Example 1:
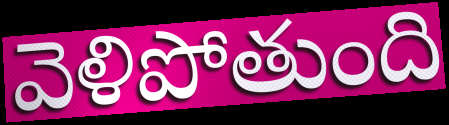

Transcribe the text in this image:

వెళిపోతుంది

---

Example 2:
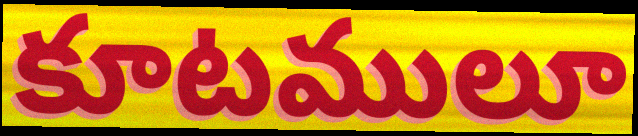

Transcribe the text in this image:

కూటములూ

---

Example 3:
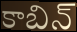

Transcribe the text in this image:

కాబిన్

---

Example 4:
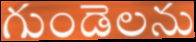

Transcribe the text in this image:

గుండెలను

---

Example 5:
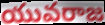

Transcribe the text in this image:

యువరాజ